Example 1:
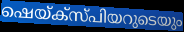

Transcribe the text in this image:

ഷെയ്ക്സ്പിയറുടെയും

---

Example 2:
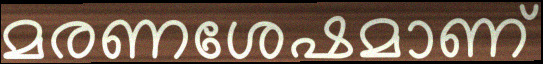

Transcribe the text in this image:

മരണശേഷമാണ്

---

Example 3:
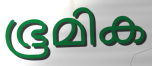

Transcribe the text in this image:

ഭൂമിക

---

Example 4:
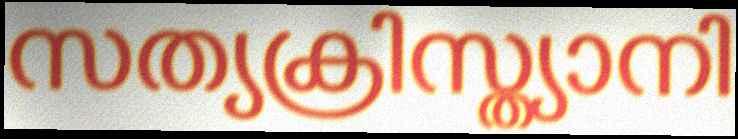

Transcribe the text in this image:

സത്യക്രിസ്ത്യാനി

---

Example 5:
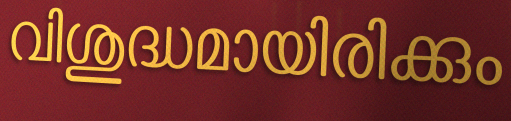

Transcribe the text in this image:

വിശുദ്ധമായിരിക്കും